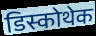
डिस्कोथेक